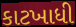
કાટખાધી